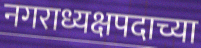
नगराध्यक्षपदाच्या